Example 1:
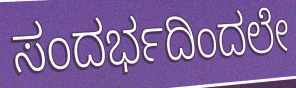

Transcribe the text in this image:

ಸಂದರ್ಭದಿಂದಲೇ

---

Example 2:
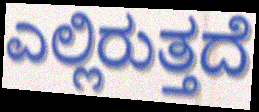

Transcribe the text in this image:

ಎಲ್ಲಿರುತ್ತದೆ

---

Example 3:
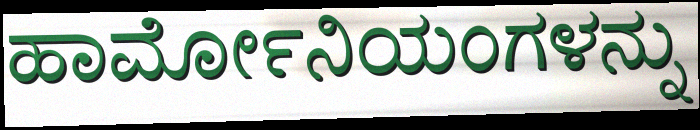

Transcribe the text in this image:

ಹಾರ್ಮೋನಿಯಂಗಳನ್ನು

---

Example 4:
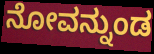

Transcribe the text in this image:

ನೋವನ್ನುಂಡ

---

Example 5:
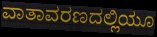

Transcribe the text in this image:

ವಾತಾವರಣದಲ್ಲಿಯೂ